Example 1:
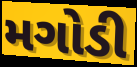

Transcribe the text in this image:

મગોડી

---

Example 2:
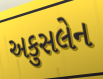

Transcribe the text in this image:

અકુસલેન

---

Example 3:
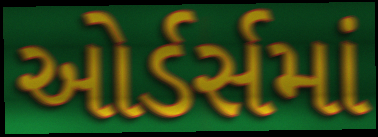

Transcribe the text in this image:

ઓર્ડર્સમાં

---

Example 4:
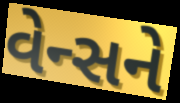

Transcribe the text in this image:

વેન્સને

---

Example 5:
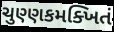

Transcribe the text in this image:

ચુણ્ણકમક્ખિતં